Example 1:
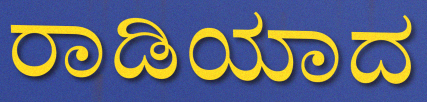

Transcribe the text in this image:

ರಾಡಿಯಾದ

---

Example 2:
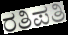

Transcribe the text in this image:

ರತಿಪತಿ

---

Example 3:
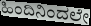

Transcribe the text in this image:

ಹಿಂದಿನಿಂದಲೇ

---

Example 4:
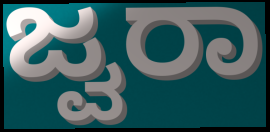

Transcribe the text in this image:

ಜ್ವರಾ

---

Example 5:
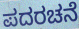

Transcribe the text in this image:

ಪದರಚನೆ